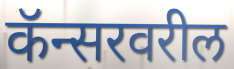
कॅन्सरवरील